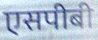
एसपीबी